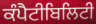
ਕੰਪੈਟੀਬਿਲਿਟੀ